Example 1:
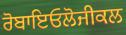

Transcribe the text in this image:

ਰੋਬਾਇਓਲੋਜੀਕਲ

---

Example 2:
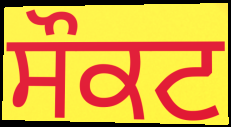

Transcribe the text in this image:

ਸੌਕਟ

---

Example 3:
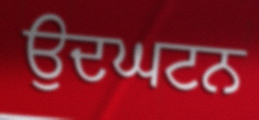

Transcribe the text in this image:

ਉਦਘਟਨ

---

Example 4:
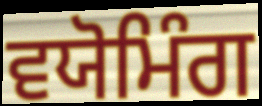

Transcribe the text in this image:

ਵਯੋਮਿੰਗ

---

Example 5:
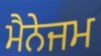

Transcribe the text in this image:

ਮੈਨੇਜਮ